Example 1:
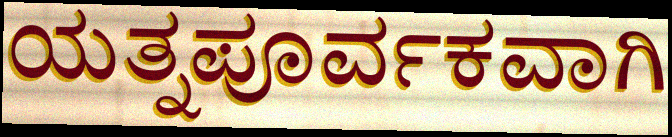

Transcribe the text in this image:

ಯತ್ನಪೂರ್ವಕವಾಗಿ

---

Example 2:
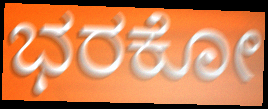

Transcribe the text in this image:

ಭರಕೋ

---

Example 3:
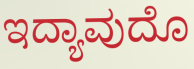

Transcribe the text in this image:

ಇದ್ಯಾವುದೊ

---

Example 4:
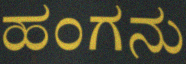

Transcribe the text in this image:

ಹಂಗನು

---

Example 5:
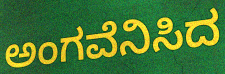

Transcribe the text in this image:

ಅಂಗವೆನಿಸಿದ